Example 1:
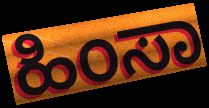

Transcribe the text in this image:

ಹಿಂಸಾ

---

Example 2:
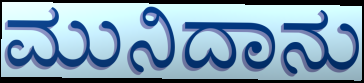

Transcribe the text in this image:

ಮುನಿದಾನು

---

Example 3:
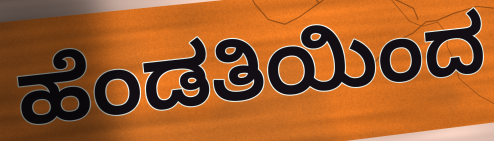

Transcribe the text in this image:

ಹೆಂಡತಿಯಿಂದ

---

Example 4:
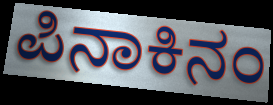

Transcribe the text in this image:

ಪಿನಾಕಿನಂ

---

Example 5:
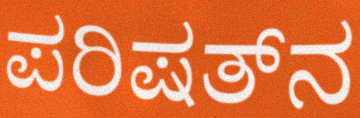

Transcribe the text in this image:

ಪರಿಷತ್‌ನ